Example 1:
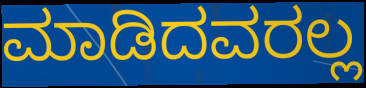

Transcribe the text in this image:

ಮಾಡಿದವರಲ್ಲ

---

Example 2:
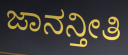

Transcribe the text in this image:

ಜಾನನ್ತೀತಿ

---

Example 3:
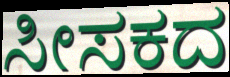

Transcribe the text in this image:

ಸೀಸಕದ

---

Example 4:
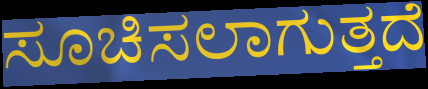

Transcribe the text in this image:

ಸೂಚಿಸಲಾಗುತ್ತದೆ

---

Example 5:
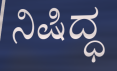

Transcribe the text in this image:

ನಿಷಿದ್ಧ